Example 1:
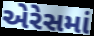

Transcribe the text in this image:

એરેસમાં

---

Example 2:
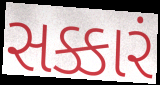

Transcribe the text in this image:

સક્કારં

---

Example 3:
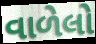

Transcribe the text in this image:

વાળેલો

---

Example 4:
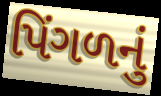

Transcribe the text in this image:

પિંગળનું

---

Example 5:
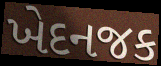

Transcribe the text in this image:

ખેદનજક